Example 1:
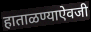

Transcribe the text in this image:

हाताळण्याऐवजी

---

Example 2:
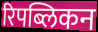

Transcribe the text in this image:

रिपब्लिकन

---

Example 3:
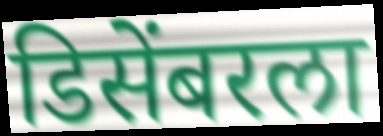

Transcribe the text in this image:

डिसेंबरला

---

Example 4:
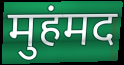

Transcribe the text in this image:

मुहंमद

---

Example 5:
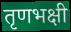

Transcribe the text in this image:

तृणभक्षी